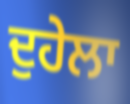
ਦੁਹੇਲਾ